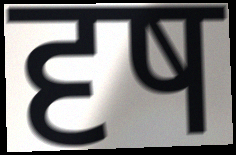
दृष